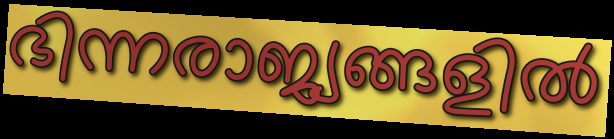
ഭിന്നരാജ്യങ്ങളിൽ